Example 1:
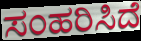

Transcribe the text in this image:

ಸಂಹರಿಸಿದೆ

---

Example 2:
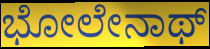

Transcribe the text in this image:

ಭೋಲೇನಾಥ್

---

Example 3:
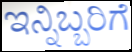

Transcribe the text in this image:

ಇನ್ನಿಬ್ಬರಿಗೆ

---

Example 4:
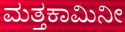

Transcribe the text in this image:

ಮತ್ತಕಾಮಿನೀ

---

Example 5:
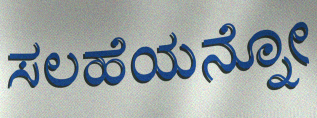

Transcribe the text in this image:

ಸಲಹೆಯನ್ನೋ